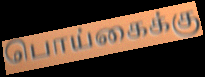
பொய்கைக்கு